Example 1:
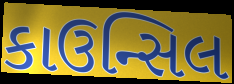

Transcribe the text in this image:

કાઉન્સિલ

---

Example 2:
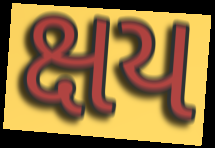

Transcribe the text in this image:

ક્ષય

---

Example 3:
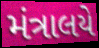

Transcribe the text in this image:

મંત્રાલયે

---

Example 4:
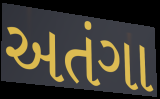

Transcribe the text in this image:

અતંગા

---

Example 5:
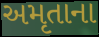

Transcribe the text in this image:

અમૃતાના